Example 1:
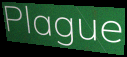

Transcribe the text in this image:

Plague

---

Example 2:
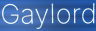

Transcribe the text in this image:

Gaylord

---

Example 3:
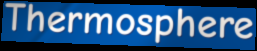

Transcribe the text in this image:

Thermosphere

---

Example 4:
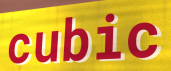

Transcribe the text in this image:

cubic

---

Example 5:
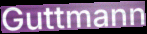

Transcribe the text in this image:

Guttmann